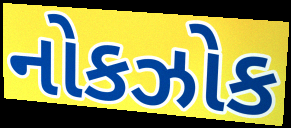
નોકઝોક